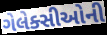
ગેલેક્સીઓની